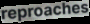
reproaches